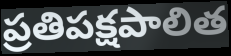
ప్రతిపక్షపాలిత